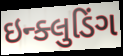
ઇન્ક્લુડિંગ